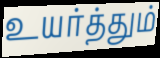
உயர்த்தும்